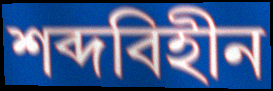
শব্দবিহীন